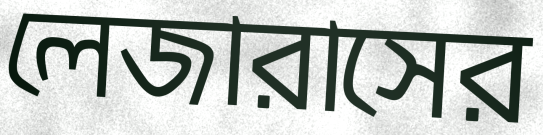
লেজারাসের